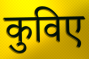
कुविए